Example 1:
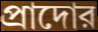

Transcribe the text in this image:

প্রাদোর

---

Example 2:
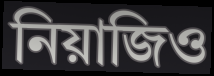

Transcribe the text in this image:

নিয়াজিও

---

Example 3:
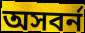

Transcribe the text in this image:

অসবর্ন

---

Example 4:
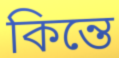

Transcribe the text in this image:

কিন্তে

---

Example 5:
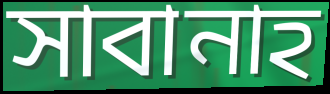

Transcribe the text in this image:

সাবানাহ